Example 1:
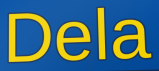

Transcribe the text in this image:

Dela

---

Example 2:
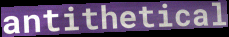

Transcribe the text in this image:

antithetical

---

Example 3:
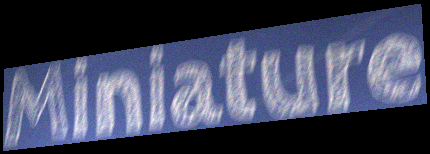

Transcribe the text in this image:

Miniature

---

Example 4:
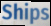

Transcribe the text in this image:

Ships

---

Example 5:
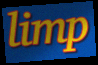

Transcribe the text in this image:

limp